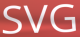
SVG